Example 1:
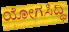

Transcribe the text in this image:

ಯೋಗಸಿದ್ಧಿ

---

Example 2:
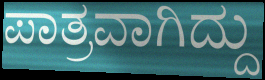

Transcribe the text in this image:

ಪಾತ್ರವಾಗಿದ್ದು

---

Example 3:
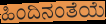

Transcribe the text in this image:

ಹಿಂದಿನಂತೆಯೆ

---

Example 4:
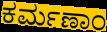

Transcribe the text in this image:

ಕರ್ಮಣಾಂ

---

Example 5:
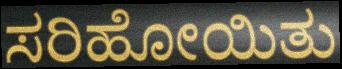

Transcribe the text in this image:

ಸರಿಹೋಯಿತು